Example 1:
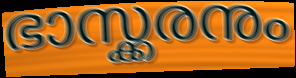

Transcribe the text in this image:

ഭാസ്ക്കരനും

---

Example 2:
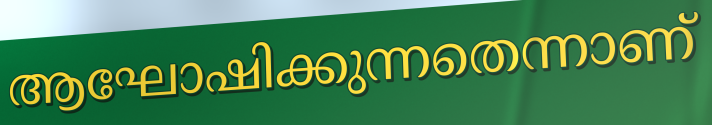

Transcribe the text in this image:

ആഘോഷിക്കുന്നതെന്നാണ്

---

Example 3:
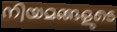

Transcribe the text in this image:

നിയമങ്ങളുടെ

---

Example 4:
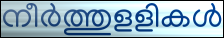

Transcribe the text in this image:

നീർത്തുളളികൾ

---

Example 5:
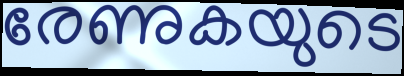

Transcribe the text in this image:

രേണുകയുടെ